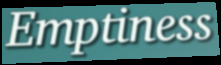
Emptiness